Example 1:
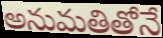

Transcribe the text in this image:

అనుమతితోనే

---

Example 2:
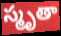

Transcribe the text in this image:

స్మృతా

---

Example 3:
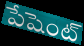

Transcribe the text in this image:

పేషెంట్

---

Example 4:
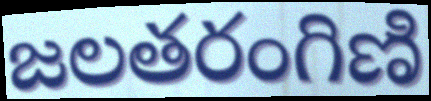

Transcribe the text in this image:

జలతరంగిణి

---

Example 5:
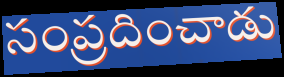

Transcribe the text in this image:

సంప్రదించాడు